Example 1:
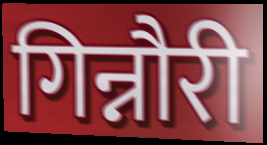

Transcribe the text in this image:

गिन्नौरी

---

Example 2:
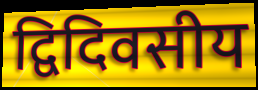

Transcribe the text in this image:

द्विदिवसीय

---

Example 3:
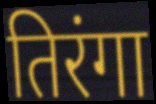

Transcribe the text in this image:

तिरंगा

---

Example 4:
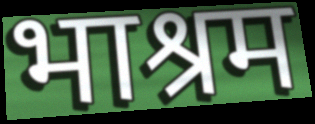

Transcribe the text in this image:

भाश्रम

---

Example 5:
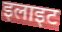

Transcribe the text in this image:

इलाइट